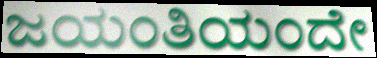
ಜಯಂತಿಯಂದೇ